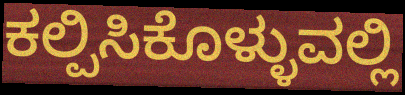
ಕಲ್ಪಿಸಿಕೊಳ್ಳುವಲ್ಲಿ